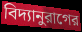
বিদ্যানুরাগের